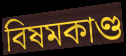
বিষমকাণ্ড